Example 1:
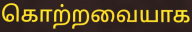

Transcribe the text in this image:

கொற்றவையாக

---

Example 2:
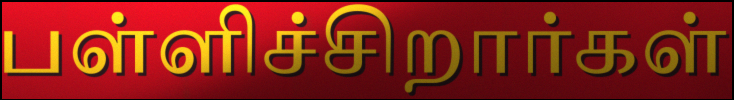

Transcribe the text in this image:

பள்ளிச்சிறார்கள்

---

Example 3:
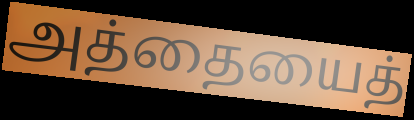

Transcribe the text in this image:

அத்தையைத்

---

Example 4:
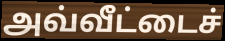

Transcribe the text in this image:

அவ்வீட்டைச்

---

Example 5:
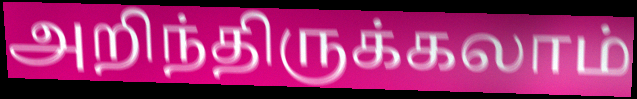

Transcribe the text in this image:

அறிந்திருக்கலாம்